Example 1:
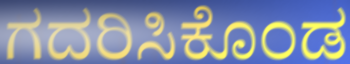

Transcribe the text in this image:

ಗದರಿಸಿಕೊಂಡ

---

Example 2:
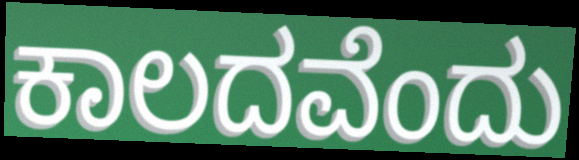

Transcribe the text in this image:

ಕಾಲದವೆಂದು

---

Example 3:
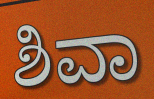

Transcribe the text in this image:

ಶಿವಾ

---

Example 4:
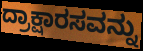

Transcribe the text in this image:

ದ್ರಾಕ್ಷಾರಸವನ್ನು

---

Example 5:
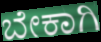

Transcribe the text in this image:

ಬೇಕಾಗಿ